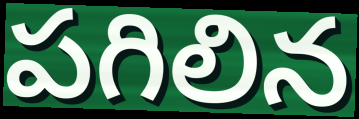
పగిలిన